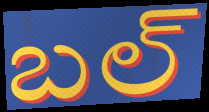
బల్